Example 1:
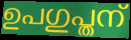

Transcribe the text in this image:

ഉപഗുപ്തന്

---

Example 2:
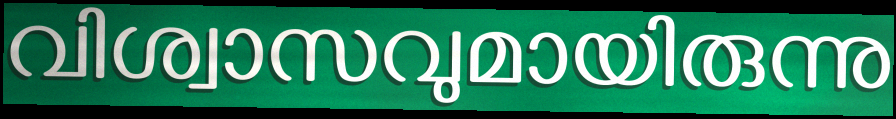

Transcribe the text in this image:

വിശ്വാസവുമായിരുന്നു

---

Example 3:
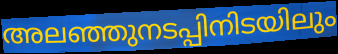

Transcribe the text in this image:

അലഞ്ഞുനടപ്പിനിടയിലും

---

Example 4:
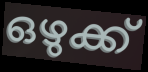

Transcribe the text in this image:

ഒഴുക്ക്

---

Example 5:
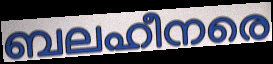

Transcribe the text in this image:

ബലഹീനരെ